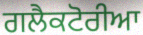
ਗਲੈਕਟੋਰੀਆ